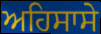
ਅਹਿਸਾਸੇ